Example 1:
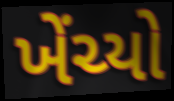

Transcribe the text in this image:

ખેંચ્યો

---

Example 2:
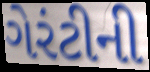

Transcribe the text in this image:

ગેરંટીની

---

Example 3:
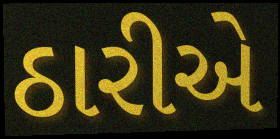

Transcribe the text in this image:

ઠારીએ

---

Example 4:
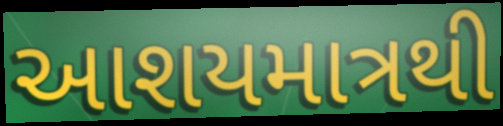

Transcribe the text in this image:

આશયમાત્રથી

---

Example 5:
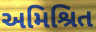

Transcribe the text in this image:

અમિશ્રિત